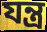
যন্ত্ৰ